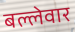
बल्लेवार